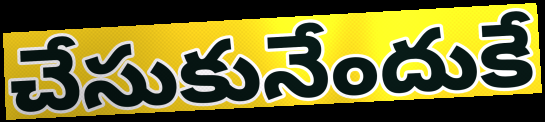
చేసుకునేందుకే